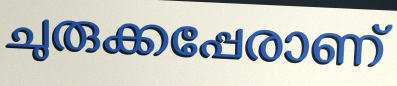
ചുരുക്കപ്പേരാണ്